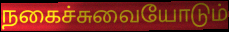
நகைச்சுவையோடும்